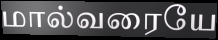
மால்வரையே